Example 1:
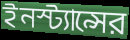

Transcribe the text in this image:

ইনস্ট্যান্সের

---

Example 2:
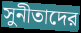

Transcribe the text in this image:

সুনীতাদের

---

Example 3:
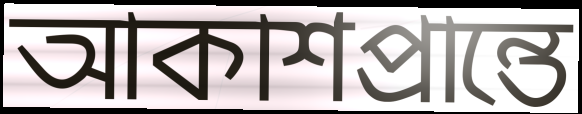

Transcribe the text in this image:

আকাশপ্রান্তে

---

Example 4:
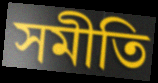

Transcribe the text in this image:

সমীতি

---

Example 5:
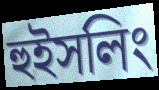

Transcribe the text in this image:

হুইসলিং